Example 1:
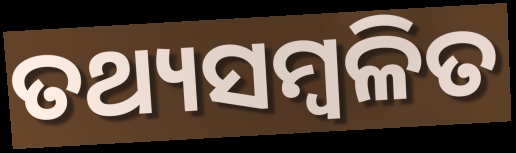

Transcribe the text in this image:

ତଥ୍ୟସମ୍ୱଳିତ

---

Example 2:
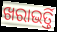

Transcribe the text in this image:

ଖରାଭର୍ତ୍ତି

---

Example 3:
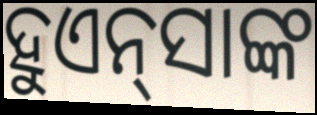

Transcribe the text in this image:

ହୁଏନ୍‍ସାଙ୍କ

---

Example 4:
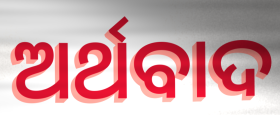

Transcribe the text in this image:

ଅର୍ଥବାଦ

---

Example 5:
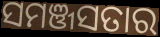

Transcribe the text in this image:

ସମଞ୍ଜସତାର